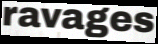
ravages